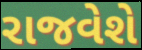
રાજવેશે